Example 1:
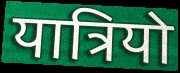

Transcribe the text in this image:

यात्रियो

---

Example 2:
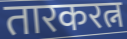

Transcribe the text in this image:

तारकरत्न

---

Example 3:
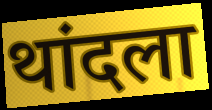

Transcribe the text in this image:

थांदला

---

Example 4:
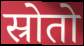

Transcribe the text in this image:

स्रोतो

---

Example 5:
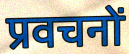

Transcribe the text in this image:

प्रवचनों